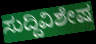
ಸುದ್ದಿವಿಶೇಷ